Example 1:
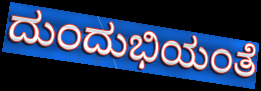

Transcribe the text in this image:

ದುಂದುಭಿಯಂತೆ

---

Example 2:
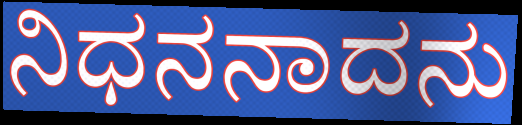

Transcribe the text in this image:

ನಿಧನನಾದನು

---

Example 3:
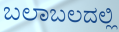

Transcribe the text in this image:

ಬಲಾಬಲದಲ್ಲಿ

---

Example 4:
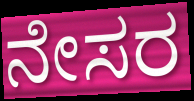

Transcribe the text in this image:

ನೇಸರ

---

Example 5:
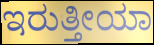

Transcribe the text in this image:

ಇರುತ್ತೀಯಾ